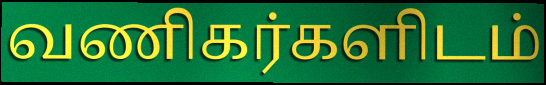
வணிகர்களிடம்